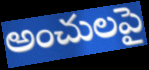
అంచులపై